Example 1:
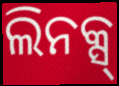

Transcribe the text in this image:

ଲିନକ୍ସ୍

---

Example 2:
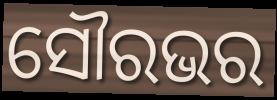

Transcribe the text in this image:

ସୌରଭର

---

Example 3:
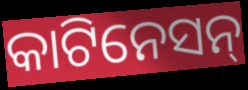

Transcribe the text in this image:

କାଟିନେସନ୍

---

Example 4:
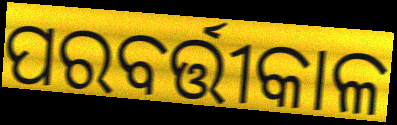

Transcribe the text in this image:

ପରବର୍ତ୍ତୀକାଳ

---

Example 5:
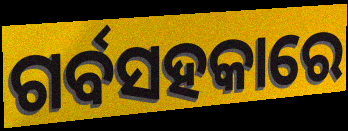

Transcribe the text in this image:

ଗର୍ବସହକାରେ